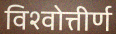
विश्वोत्तीर्ण